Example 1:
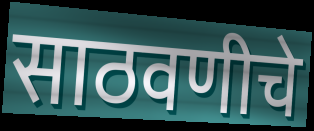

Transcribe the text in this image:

साठवणीचे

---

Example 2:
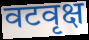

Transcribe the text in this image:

वटवृक्ष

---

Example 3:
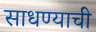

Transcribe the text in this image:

साधण्याची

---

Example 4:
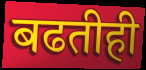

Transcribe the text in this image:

बढतीही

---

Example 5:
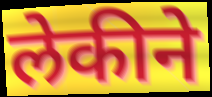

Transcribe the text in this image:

लेकीने